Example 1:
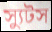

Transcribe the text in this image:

স্যুটস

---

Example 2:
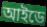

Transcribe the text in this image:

আইডে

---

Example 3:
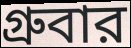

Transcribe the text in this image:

গ্রুবার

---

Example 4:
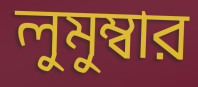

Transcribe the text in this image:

লুমুম্বার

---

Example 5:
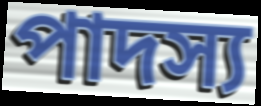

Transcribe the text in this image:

পাদস্য